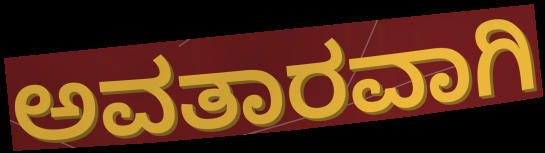
ಅವತಾರವಾಗಿ